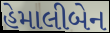
હેમાલીબેન